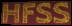
HFSS